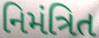
નિમંત્રિત